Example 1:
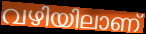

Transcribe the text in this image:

വഴിയിലാണ്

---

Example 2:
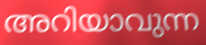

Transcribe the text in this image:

അറിയാവുന്ന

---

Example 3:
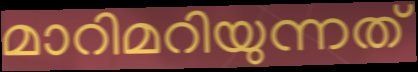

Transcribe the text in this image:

മാറിമറിയുന്നത്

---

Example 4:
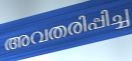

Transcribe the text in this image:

അവതരിപ്പിച്ച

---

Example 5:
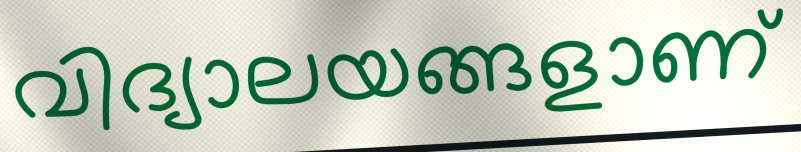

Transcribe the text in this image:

വിദ്യാലയങ്ങളാണ്